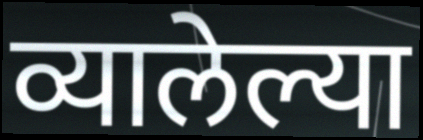
व्यालेल्या